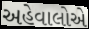
અહેવાલોએ